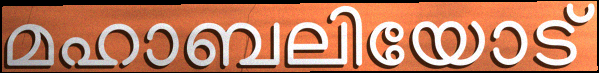
മഹാബലിയോട്